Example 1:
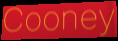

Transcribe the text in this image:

Cooney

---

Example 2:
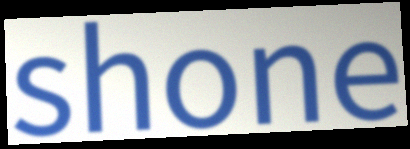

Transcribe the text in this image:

shone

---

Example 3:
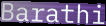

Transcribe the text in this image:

Barathi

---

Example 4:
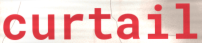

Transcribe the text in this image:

curtail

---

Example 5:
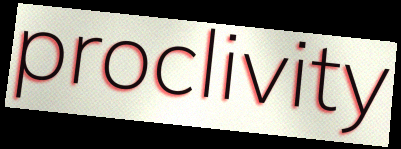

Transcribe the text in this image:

proclivity